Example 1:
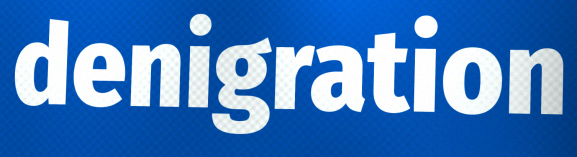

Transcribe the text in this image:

denigration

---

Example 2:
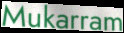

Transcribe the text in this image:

Mukarram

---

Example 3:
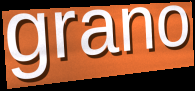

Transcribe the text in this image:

grano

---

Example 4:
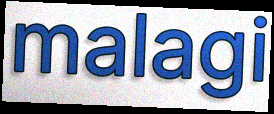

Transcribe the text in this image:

malagi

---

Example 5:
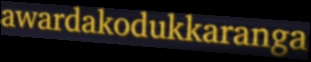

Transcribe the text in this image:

awardakodukkaranga